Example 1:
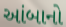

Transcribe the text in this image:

આંબાનો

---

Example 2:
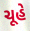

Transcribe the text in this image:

ચૂહે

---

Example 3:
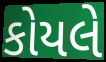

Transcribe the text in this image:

કોયલે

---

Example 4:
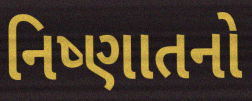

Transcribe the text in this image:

નિષ્ણાતનો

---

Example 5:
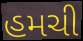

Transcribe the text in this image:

હમચી